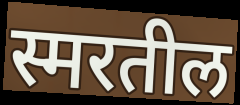
स्मरतील